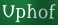
Uphof